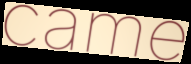
came